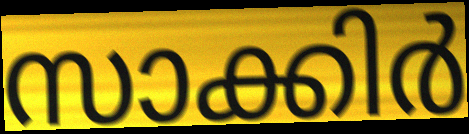
സാക്കിർ